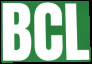
BCL